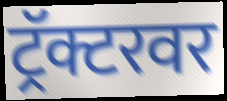
ट्रॅक्टरवर